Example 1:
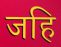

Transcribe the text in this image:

जहि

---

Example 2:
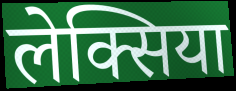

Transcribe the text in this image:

लेक्सिया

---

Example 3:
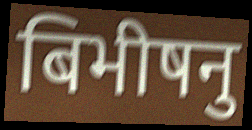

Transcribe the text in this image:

बिभीषनु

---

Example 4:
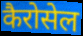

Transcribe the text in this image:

कैरोसेल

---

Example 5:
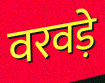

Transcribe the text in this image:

वरवड़े